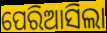
ପେରିଆସିଲା